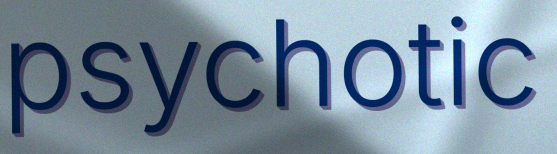
psychotic